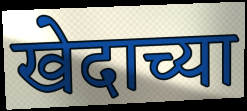
खेदाच्या